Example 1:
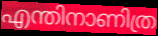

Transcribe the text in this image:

എന്തിനാണിത്ര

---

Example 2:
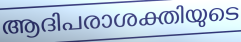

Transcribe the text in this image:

ആദിപരാശക്തിയുടെ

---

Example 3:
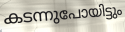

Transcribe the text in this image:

കടന്നുപോയിട്ടും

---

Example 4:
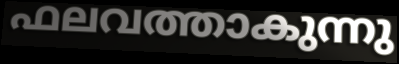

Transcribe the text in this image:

ഫലവത്താകുന്നു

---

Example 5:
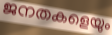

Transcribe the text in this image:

ജനതകളെയും